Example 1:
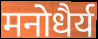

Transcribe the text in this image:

मनोधैर्य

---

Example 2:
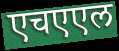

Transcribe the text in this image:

एचएएल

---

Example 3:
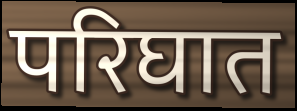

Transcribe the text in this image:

परिघात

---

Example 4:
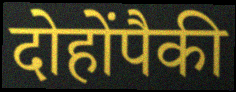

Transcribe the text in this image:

दोहोंपैकी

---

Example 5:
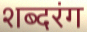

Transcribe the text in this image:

शब्दरंग